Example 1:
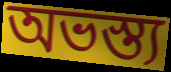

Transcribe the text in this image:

অভস্ত্য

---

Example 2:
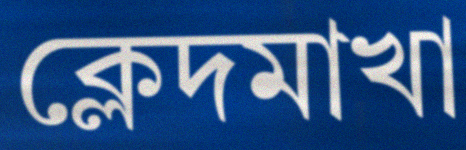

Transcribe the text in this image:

ক্লেদমাখা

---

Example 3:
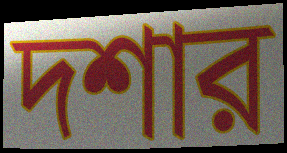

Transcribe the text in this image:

দশার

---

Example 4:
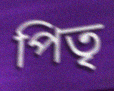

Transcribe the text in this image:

পিতৃ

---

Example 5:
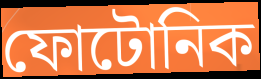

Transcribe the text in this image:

ফোটোনিক